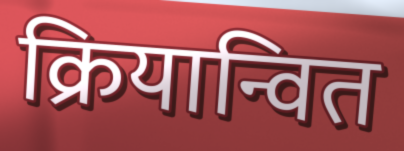
क्रियान्वित